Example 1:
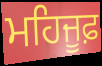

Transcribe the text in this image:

ਮਹਿਜੂਫ਼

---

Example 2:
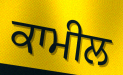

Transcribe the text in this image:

ਕਾਮੀਲ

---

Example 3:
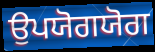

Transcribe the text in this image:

ਉਪਯੋਗਯੋਗ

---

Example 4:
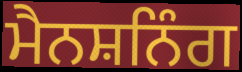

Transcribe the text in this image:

ਮੈਨਸ਼ਨਿੰਗ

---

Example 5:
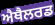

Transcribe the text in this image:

ਐਥੈਲਰਡ